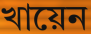
খায়েন